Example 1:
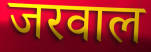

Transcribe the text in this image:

जरवाल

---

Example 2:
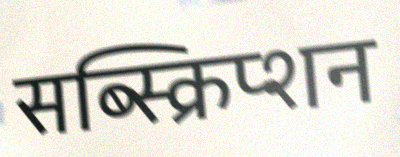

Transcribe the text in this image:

सब्स्क्रिप्शन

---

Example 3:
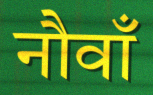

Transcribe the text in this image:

नौवाँ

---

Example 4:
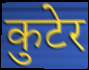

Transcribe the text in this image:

कुटेर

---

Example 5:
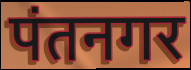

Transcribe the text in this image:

पंतनगर